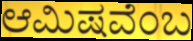
ಆಮಿಷವೆಂಬ